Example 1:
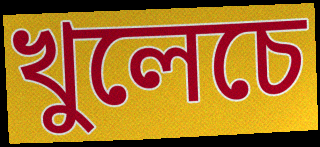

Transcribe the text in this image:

খুলেচে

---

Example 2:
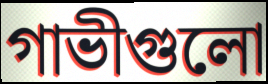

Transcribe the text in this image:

গাভীগুলো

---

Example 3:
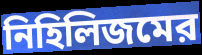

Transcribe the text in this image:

নিহিলিজমের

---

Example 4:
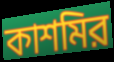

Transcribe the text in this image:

কাশমির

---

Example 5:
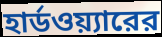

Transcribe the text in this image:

হার্ডওয়্যারের